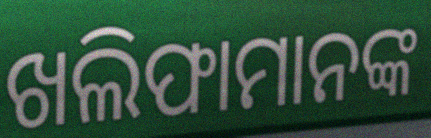
ଖଲିଫାମାନଙ୍କ